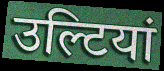
उल्‍टियां